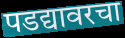
पडद्यावरचा